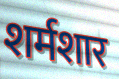
शर्मशार